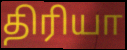
திரியா